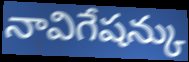
నావిగేషన్కు